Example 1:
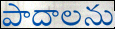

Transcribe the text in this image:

పాదాలను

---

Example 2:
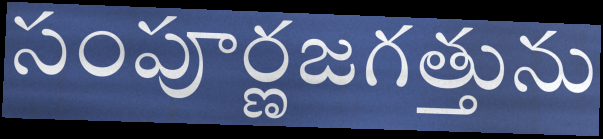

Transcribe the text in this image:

సంపూర్ణజగత్తును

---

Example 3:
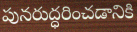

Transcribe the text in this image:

పునరుద్ధరించడానికి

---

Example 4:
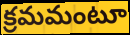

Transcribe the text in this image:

క్రమమంటూ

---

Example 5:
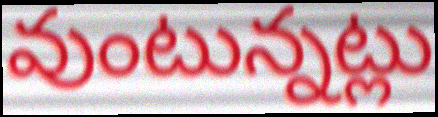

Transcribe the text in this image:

వుంటున్నట్లు